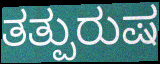
ತತ್ಪುರುಷ